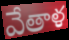
వేతాళ